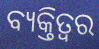
ବ୍ୟକ୍ତିତ୍ବର